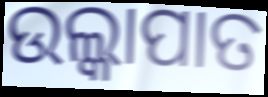
ଉଲ୍କାପାତ